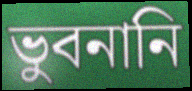
ভুবনানি